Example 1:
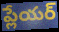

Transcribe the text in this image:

ప్లేయర్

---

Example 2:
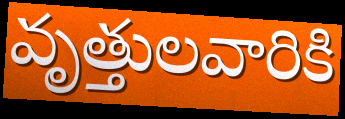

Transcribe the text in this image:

వృత్తులవారికి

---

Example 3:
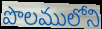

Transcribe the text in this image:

పొలములోని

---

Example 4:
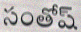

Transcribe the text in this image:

సంతోష్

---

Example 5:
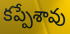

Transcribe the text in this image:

కప్పేశావు